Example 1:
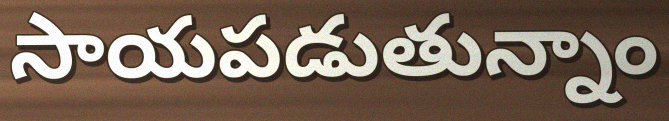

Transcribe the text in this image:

సాయపడుతున్నాం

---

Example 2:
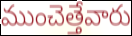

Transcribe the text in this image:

ముంచెత్తేవారు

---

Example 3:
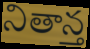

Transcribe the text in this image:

నితాన్త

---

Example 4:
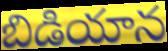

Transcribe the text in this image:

బిడియాన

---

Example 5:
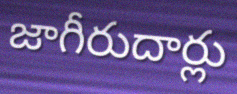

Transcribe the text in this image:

జాగీరుదార్లు